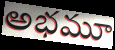
అభమూ